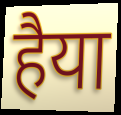
हैया